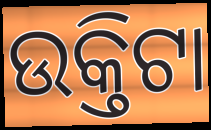
ଉକ୍ତିଟା